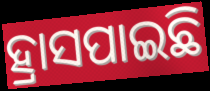
ହ୍ରାସପାଇଛି